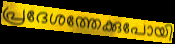
പ്രദേശത്തേക്കുപോയി